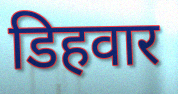
डिहवार